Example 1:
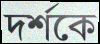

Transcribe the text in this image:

দৰ্শকে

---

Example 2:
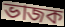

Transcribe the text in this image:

ভাজক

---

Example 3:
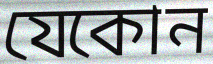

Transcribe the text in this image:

যেকোন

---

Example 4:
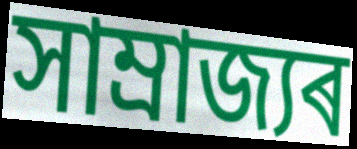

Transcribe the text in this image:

সাম্ৰাজ্যৰ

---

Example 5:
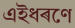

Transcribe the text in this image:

এইধৰণে